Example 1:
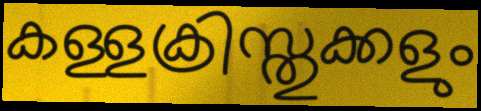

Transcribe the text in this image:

കള്ളക്രിസ്തുക്കളും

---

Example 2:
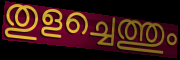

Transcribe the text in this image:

തുളച്ചെത്തും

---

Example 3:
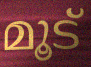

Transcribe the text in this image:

മൂട്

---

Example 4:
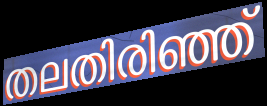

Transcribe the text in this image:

തലതിരിഞ്ഞ്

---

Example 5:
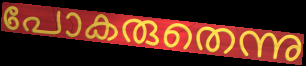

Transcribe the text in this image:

പോകരുതെന്നു